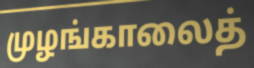
முழங்காலைத்